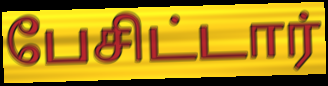
பேசிட்டார்